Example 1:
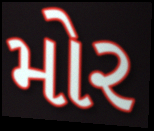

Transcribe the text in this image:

મોર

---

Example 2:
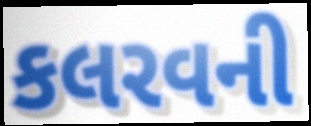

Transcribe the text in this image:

કલરવની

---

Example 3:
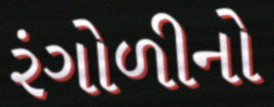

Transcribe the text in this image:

રંગોળીનો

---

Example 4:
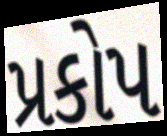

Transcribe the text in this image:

પ્રકોપ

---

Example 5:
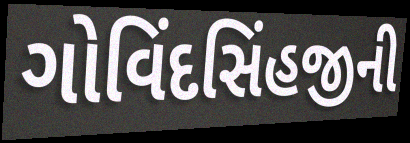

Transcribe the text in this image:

ગોવિંદસિંહજીની